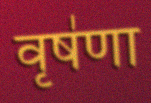
वृष॑णा